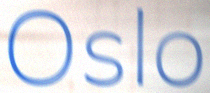
Oslo